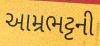
આમ્રભટ્ટની